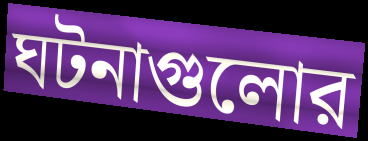
ঘটনাগুলোর